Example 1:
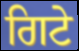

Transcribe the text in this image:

ਗਿਟੇ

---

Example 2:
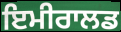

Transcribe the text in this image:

ਇਮੀਰਾਲਡ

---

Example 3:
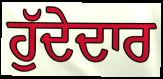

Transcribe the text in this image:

ਹੁੱਦੇਦਾਰ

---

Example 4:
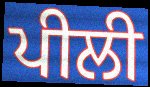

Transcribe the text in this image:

ਪੀਲੀ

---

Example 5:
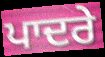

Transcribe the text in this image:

ਪਾਦਰੇ